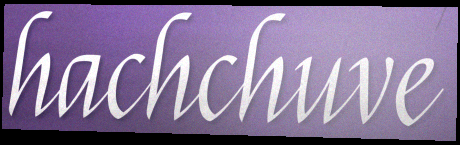
hachchuve